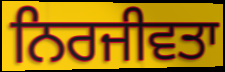
ਨਿਰਜੀਵਤਾ